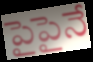
పైపైనే